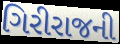
ગિરીરાજની